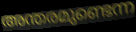
അന്തരമുണ്ടെന്ന